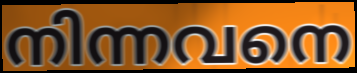
നിന്നവനെ